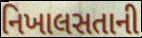
નિખાલસતાની